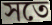
সতে